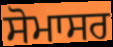
ਸੋਮਾਸਰ